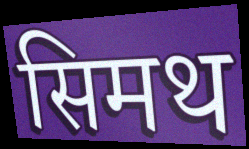
सिमथ